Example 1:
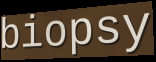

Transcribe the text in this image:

biopsy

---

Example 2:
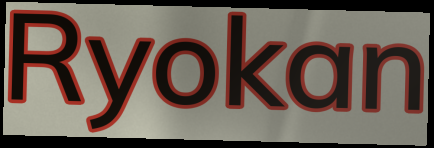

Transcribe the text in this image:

Ryokan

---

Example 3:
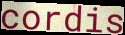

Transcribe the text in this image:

cordis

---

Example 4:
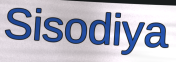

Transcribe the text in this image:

Sisodiya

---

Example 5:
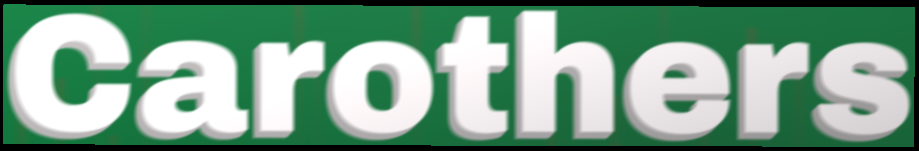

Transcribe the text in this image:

Carothers